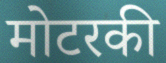
मोटरकी